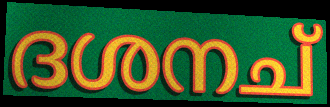
ദശനച്